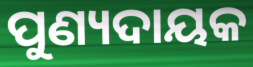
ପୁଣ୍ୟଦାୟକ